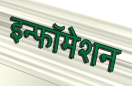
इन्फॉमेशन